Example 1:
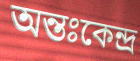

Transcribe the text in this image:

অন্তঃকেন্দ্র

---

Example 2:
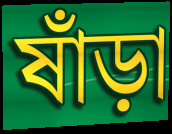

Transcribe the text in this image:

ষাঁড়া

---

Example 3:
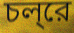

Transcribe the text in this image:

চল্‌রে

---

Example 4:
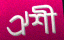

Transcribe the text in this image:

ঐশী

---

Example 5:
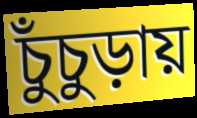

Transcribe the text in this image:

চুঁচুড়ায়